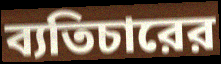
ব্যতিচারের